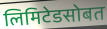
लिमिटेडसोबत